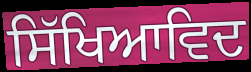
ਸਿੱਖਿਆਵਿਦ